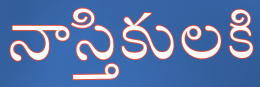
నాస్తికులకి